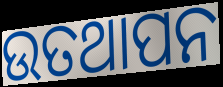
ଉତଥାପନ